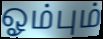
ஓம்பும்